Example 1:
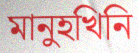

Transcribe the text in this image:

মানুহখিনি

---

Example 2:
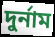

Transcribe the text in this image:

দুৰ্নাম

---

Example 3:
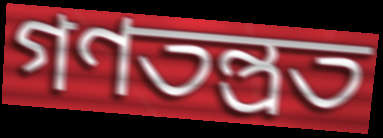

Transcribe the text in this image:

গণতন্ত্ৰত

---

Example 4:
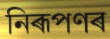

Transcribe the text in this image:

নিৰূপণৰ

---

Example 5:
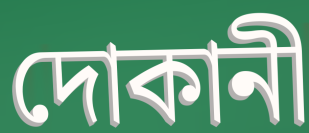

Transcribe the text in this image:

দোকানী